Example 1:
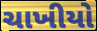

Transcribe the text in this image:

ચાખીયો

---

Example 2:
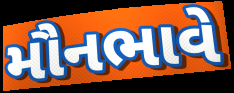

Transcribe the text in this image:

મૌનભાવે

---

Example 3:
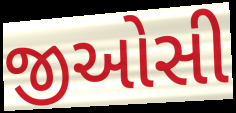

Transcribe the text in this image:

જીઓસી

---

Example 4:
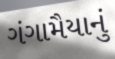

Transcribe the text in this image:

ગંગામૈયાનું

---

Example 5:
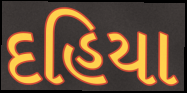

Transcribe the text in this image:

દહિયા